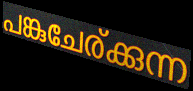
പങ്കുചേര്ക്കുന്ന